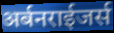
अर्बनराईजर्स